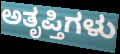
ಅತೃಪ್ತಿಗಳು